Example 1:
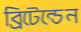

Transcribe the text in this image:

ব্রিটেন্ডেন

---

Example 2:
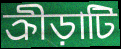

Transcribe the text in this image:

ক্রীড়াটি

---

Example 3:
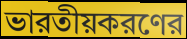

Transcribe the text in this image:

ভারতীয়করণের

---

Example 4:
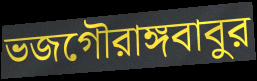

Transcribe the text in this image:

ভজগৌরাঙ্গবাবুর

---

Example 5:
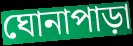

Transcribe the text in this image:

ঘোনাপাড়া